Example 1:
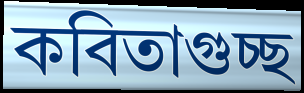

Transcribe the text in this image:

কবিতাগুচ্ছ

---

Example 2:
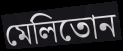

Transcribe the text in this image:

মেলিতোন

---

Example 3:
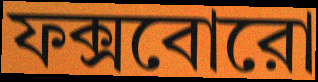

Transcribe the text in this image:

ফক্সবোরো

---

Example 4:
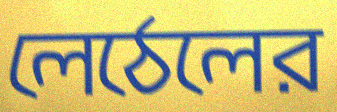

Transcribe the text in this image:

লেঠেলের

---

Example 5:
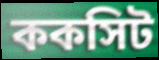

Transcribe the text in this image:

ককসিট